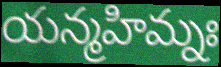
యన్మహిమ్నః